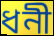
ধনী